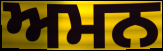
ਅਮਨ